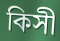
কিসী